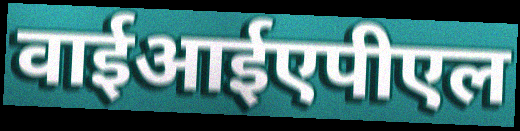
वाईआईएपीएल